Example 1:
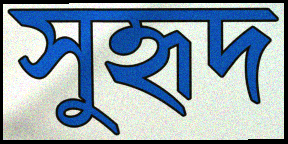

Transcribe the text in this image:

সুহৃদ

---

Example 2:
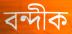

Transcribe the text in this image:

বন্দীক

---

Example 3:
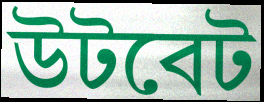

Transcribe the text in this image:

উটবেট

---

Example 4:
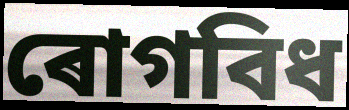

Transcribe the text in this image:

ৰোগবিধ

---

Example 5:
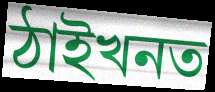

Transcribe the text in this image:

ঠাইখনত